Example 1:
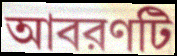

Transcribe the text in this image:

আবরণটি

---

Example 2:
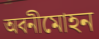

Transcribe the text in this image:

অবনীমোহন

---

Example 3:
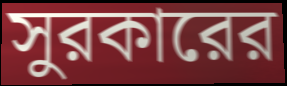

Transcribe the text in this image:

সুরকারের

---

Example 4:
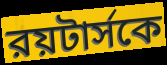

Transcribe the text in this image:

রয়টার্সকে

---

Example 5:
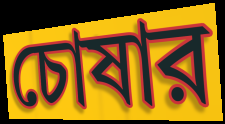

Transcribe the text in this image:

চোষার